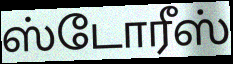
ஸ்டோரீஸ்